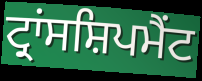
ਟ੍ਰਾਂਸਸ਼ਿਪਮੈਂਟ